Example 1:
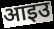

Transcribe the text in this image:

आइउ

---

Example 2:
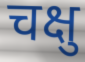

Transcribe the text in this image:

चक्षु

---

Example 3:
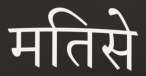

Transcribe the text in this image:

मतिसे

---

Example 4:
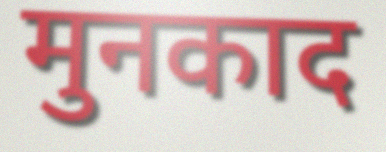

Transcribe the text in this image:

मुनकाद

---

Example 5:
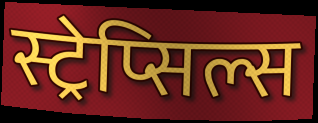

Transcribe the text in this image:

स्ट्रेप्सिल्स